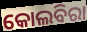
କୋଲବିରା